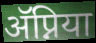
ॲप्निया